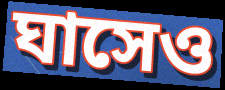
ঘাসেও